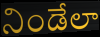
నిండేలా